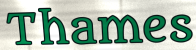
Thames